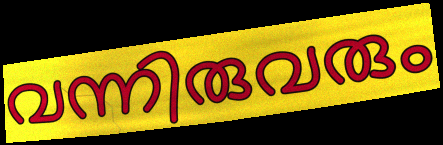
വന്നിരുവരും